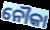
ନୌକା